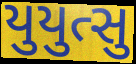
યુયુત્સુ